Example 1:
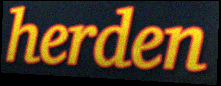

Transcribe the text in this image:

herden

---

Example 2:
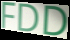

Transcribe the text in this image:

FDD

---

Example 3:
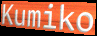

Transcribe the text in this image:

Kumiko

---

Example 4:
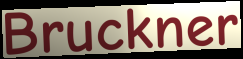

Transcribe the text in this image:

Bruckner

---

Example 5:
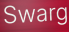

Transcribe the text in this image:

Swarg